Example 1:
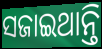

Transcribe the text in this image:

ସଜାଇଥାନ୍ତି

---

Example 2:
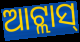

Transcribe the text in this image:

ଆଟ୍ଲାସ୍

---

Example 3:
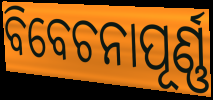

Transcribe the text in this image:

ବିବେଚନାପୂର୍ଣ୍ଣ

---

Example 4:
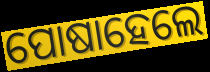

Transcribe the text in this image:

ପୋଷାହେଲେ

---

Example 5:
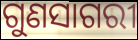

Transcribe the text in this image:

ଗୁଣସାଗରୀ